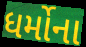
ધર્મોના